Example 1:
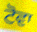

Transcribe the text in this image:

ਟੋਵਾ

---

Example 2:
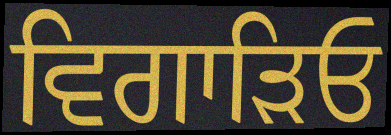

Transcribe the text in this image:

ਵਿਗਾੜਿਓ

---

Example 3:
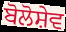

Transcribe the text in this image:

ਬੋਲੋਸ਼ੇਵ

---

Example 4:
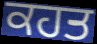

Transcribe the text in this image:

ਕਹਤ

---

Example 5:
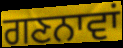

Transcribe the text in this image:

ਗਣਨਾਵਾਂ